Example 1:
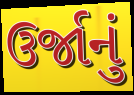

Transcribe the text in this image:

ઉર્જાનું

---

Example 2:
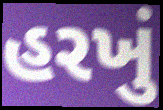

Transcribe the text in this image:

હરખું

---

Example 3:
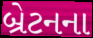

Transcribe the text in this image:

બ્રેટનના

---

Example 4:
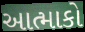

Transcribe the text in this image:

આત્માકો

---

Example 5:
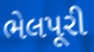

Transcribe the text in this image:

ભેલપૂરી